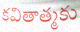
కవితాత్మకు